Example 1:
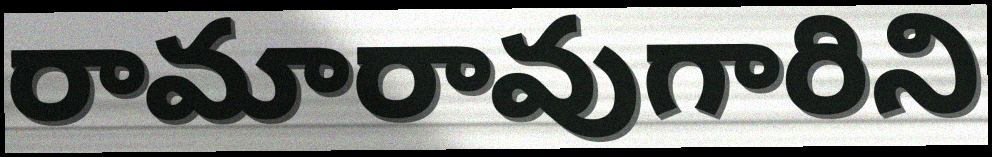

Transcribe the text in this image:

రామారావుగారిని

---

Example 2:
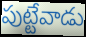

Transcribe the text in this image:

పుట్టేవాడు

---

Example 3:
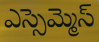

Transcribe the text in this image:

ఎస్సెమ్మెస్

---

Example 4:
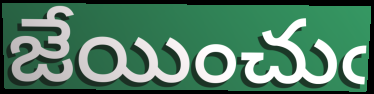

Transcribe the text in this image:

జేయించుఁ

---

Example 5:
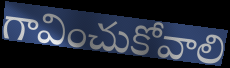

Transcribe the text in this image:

గావించుకోవాలి